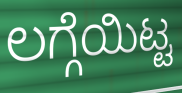
ಲಗ್ಗೆಯಿಟ್ಟ